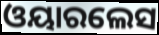
ଓୟାରଲେସ